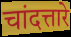
चांदत्तारे